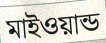
মাইওয়ান্ড